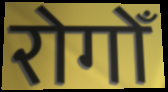
रोगोँ